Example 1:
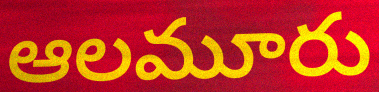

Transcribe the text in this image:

ఆలమూరు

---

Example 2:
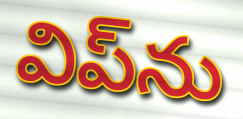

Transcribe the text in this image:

విప్‌ను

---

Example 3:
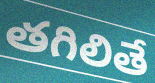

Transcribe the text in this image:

తగిలితే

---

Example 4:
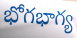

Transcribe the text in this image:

భోగభాగ్య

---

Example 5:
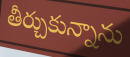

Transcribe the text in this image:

తీర్చుకున్నాను